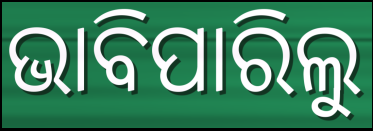
ଭାବିପାରିଲୁ